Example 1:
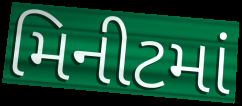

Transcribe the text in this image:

મિનીટમાં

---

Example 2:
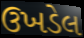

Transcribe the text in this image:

ઉખડેલ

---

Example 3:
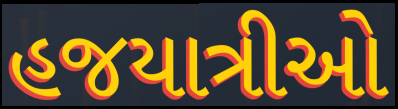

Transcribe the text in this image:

હજયાત્રીઓ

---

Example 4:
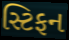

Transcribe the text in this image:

સ્ટિફન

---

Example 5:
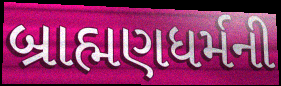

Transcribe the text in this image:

બ્રાહ્મણધર્મની